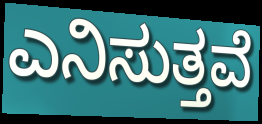
ಎನಿಸುತ್ತವೆ